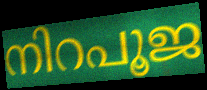
നിറപൂജ